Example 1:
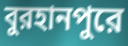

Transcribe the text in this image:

বুরহানপুরে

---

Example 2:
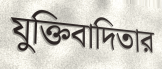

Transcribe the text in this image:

যুক্তিবাদিতার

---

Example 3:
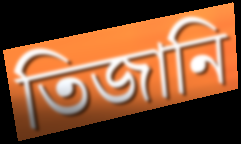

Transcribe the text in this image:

তিজানি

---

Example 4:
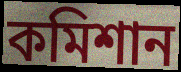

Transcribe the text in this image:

কমিশান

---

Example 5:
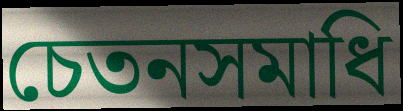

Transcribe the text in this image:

চেতনসমাধি